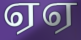
ஏஏ